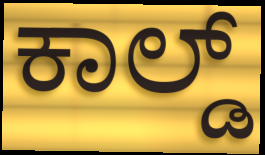
ಕಾಲ್ಡ್